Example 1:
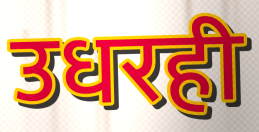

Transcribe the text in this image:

उधरही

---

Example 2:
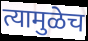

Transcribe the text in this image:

त्यामुळेच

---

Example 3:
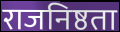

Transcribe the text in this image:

राजनिष्ठता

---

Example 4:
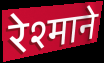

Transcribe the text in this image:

रेश्माने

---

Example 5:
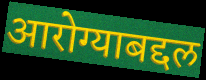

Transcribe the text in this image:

आरोग्याबद्दल